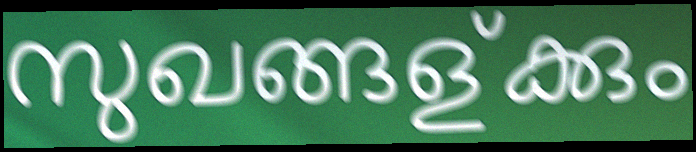
സുഖങ്ങള്ക്കും